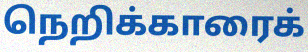
நெறிக்காரைக்